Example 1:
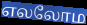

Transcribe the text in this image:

எலலோம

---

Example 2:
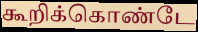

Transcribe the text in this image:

கூறிக்கொண்டே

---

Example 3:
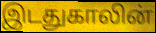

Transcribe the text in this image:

இடதுகாலின்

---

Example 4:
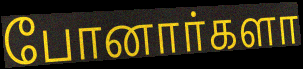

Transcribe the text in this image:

போனார்களா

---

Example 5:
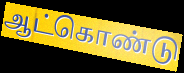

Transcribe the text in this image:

ஆட்கொண்டு